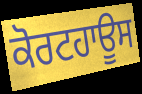
ਕੋਰਟਹਾਊਸ